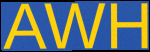
AWH